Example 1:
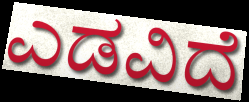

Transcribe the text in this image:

ಎಡವಿದೆ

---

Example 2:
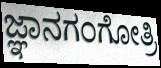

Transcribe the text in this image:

ಜ್ಞಾನಗಂಗೋತ್ರಿ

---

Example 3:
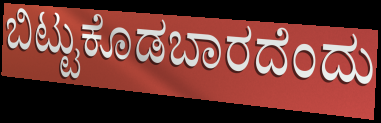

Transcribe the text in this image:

ಬಿಟ್ಟುಕೊಡಬಾರದೆಂದು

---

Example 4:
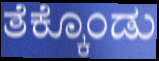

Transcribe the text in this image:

ತೆಕ್ಕೊಂಡು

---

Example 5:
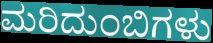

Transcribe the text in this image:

ಮರಿದುಂಬಿಗಳು